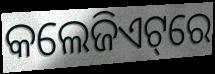
କଲେଜିଏଟ୍‌ରେ